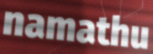
namathu